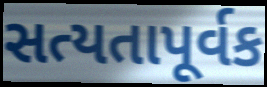
સત્યતાપૂર્વક